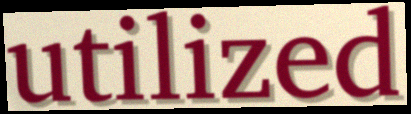
utilized